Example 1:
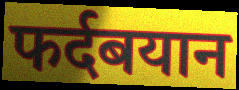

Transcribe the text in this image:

फर्दबयान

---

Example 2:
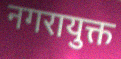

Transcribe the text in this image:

नगरायुक्त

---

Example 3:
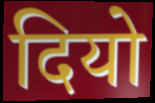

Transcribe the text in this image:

दियो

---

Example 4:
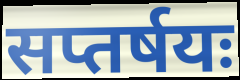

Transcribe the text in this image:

सप्तर्षयः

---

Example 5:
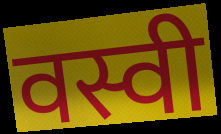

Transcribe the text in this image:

वस्वी